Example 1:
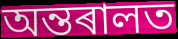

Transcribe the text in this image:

অন্তৰালত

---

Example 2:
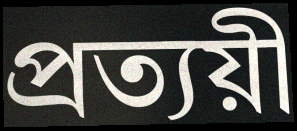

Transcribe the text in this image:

প্ৰত্যয়ী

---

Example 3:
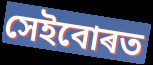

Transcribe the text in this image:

সেইবোৰত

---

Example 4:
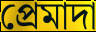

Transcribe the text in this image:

প্ৰেমাদা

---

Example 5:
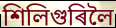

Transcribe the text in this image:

শিলিগুৰিলৈ